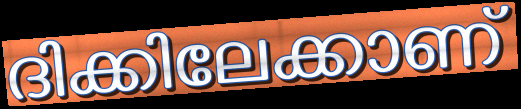
ദിക്കിലേക്കാണ്